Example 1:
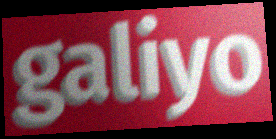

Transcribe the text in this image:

galiyo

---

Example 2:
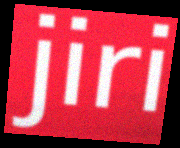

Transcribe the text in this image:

jiri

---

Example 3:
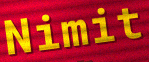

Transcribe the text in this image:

Nimit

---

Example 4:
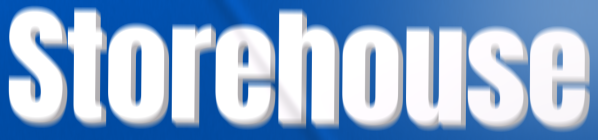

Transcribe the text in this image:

Storehouse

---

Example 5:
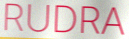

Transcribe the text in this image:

RUDRA